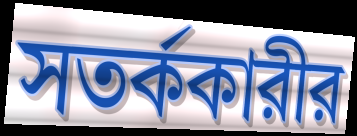
সতর্ককারীর